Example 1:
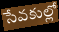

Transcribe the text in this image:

సేవకుల్లో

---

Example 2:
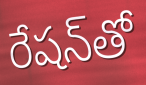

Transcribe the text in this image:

రేషన్‌తో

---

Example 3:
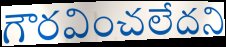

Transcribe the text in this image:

గౌరవించలేదని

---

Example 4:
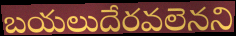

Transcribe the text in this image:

బయలుదేరవలెనని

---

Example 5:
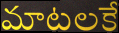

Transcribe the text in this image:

మాటలకే